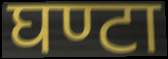
घण्टा